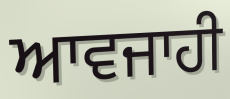
ਆਵਜਾਹੀ